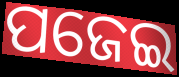
ପଜେଇ